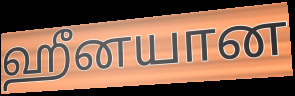
ஹீனயான